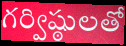
గర్విష్ఠులతో